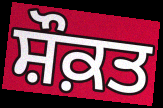
ਸ਼ੌਕ਼ਤ